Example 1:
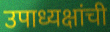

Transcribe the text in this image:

उपाध्यक्षांची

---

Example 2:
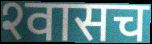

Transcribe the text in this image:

श्वासच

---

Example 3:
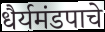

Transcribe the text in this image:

धैर्यमंडपाचे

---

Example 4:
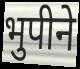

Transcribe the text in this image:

भुपीने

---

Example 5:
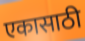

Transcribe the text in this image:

एकासाठी